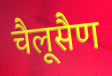
चैलूसैण